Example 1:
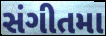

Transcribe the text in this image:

સંગીતમા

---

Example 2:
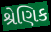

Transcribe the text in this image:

શ્રેણિક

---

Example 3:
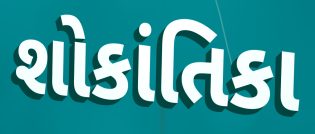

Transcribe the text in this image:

શોકાંતિકા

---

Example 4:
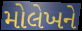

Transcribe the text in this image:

મોલેખને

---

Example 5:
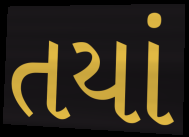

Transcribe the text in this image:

તયાં